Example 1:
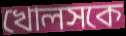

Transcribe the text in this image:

খোলসকে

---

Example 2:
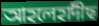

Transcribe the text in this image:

আহলেহাদীছ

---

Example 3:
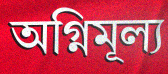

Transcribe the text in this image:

অগ্নিমূল্য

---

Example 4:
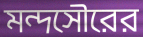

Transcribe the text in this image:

মন্দসৌরের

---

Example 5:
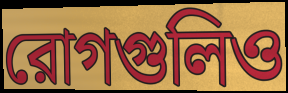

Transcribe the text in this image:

রোগগুলিও